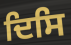
ਦਿਸਿ